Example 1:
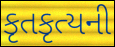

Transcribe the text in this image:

કૃતકૃત્યની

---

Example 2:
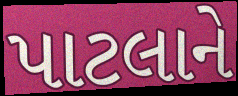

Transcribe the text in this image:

પાટલાને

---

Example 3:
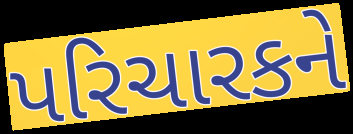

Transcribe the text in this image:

પરિચારકને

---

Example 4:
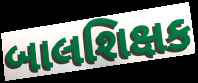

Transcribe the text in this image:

બાલશિક્ષક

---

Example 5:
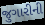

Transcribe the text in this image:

જુગારીની